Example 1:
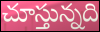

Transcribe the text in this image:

చూస్తున్నది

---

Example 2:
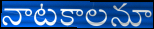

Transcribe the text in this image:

నాటకాలనూ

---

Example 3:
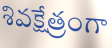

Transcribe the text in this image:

శివక్షేత్రంగా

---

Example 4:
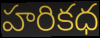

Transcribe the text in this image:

హరికధ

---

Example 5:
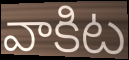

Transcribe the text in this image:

వాకిట